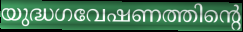
യുദ്ധഗവേഷണത്തിന്റെ